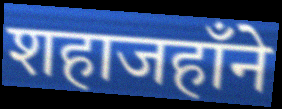
शहाजहाँने